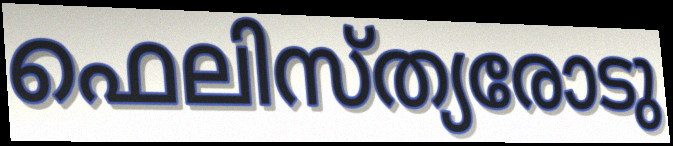
ഫെലിസ്ത്യരോടു